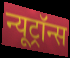
न्यूट्रॉन्स